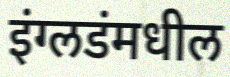
इंग्लडंमधील